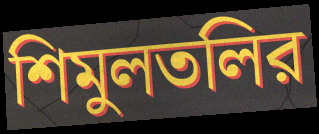
শিমুলতলির